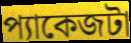
প্যাকেজটা